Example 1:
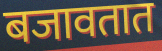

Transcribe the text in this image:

बजावतात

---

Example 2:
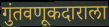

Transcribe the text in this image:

गुंतवणूकदाराला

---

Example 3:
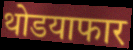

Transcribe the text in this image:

थोडयाफार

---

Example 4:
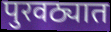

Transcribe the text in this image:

पुरवठ्यात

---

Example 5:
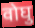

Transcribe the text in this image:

वोघु